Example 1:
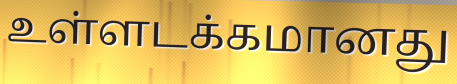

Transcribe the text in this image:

உள்ளடக்கமானது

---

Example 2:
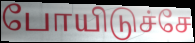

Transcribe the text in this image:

போயிடுச்சே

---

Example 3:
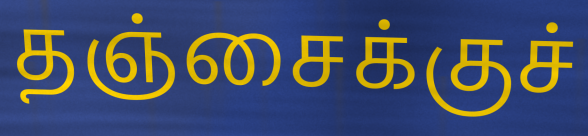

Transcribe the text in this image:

தஞ்சைக்குச்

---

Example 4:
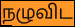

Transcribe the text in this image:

நழுவிட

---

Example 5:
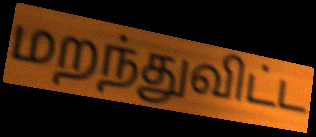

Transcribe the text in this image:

மறந்துவிட்ட